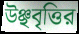
উঞ্ছবৃত্তির